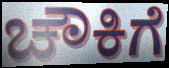
ಚೌಕಿಗೆ